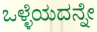
ಒಳ್ಳೆಯದನ್ನೇ